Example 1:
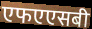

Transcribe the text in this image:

एफएएसबी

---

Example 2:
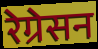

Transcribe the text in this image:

रेग्रेसन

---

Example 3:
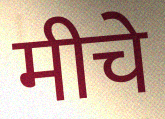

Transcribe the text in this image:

मीचे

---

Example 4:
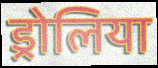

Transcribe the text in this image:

ड्रोलिया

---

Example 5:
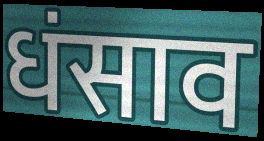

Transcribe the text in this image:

धंसाव